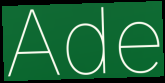
Ade